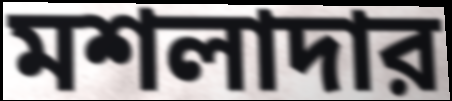
মশলাদার